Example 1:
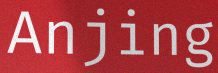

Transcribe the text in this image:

Anjing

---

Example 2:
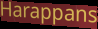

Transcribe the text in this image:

Harappans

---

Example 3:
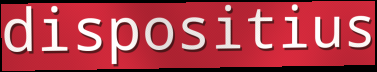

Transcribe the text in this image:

dispositius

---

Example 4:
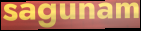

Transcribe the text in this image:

sagunam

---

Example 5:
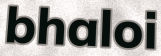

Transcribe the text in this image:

bhaloi